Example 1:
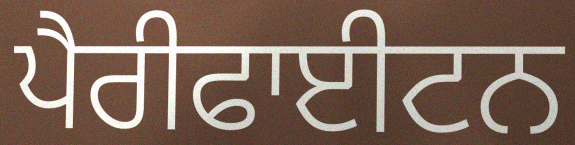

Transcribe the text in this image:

ਪੈਰੀਫਾਈਟਨ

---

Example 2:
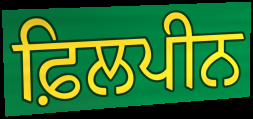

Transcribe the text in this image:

ਫ਼ਿਲਪੀਨ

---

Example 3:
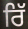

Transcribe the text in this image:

ਰਿੱ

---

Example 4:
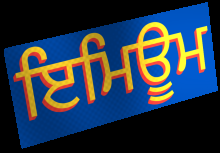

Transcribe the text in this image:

ਇਮਿਊਮ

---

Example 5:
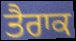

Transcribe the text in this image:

ਤੈਰਾਕ